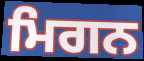
ਮਿਗਨ